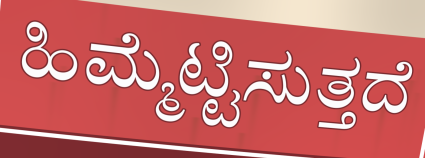
ಹಿಮ್ಮೆಟ್ಟಿಸುತ್ತದೆ